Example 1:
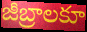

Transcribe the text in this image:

జీబ్రాలకూ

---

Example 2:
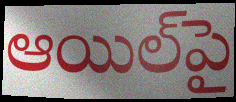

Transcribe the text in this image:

ఆయిల్‌పై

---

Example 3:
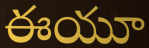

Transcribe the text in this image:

ఈయూ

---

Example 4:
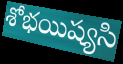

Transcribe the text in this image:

శోభయిష్యసి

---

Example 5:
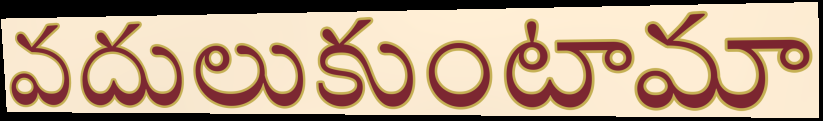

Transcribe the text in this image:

వదులుకుంటామా